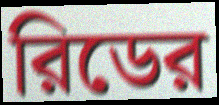
রিডের